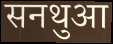
सनथुआ